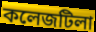
কলেজটিলা